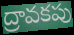
ద్రావకపు